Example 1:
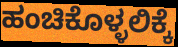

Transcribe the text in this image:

ಹಂಚಿಕೊಳ್ಳಲಿಕ್ಕೆ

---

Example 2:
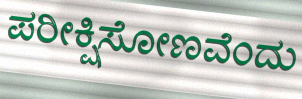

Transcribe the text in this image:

ಪರೀಕ್ಷಿಸೋಣವೆಂದು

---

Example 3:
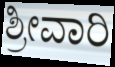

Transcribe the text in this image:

ಶ್ರೀವಾರಿ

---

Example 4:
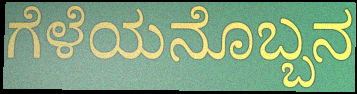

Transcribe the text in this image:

ಗೆಳೆಯನೊಬ್ಬನ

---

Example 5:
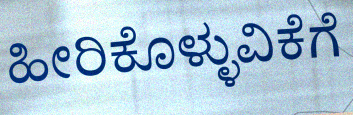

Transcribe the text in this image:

ಹೀರಿಕೊಳ್ಳುವಿಕೆಗೆ